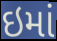
ઇમાં